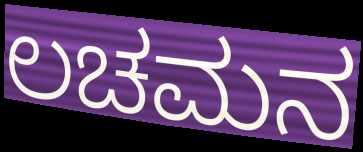
ಲಚಮನ